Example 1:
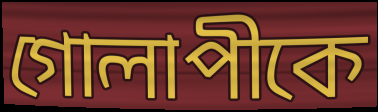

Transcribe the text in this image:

গোলাপীকে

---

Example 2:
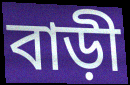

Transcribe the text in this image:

বাড়ী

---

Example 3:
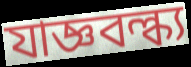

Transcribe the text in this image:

যাজ্ঞবল্ক্য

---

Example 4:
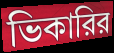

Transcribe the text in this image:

ভিকারির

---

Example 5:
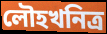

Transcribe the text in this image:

লৌহখনিত্র